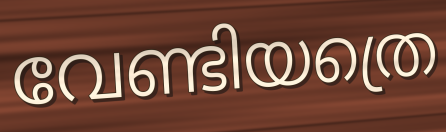
വേണ്ടിയത്രെ